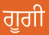
ਗੂਗੀ